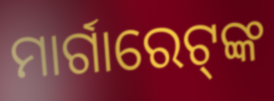
ମାର୍ଗାରେଟ୍‍ଙ୍କ